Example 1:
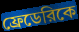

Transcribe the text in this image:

ফ্রেডেরিকে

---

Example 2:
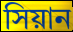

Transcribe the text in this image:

সিয়ান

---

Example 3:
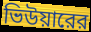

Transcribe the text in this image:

ভিউয়ারের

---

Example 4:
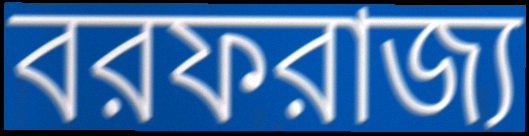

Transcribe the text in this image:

বরফরাজ্য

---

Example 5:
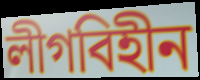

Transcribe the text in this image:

লীগবিহীন